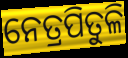
ନେତ୍ରପିତୁଳି